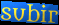
subir